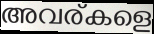
അവര്കളെ